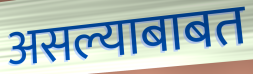
असल्याबाबत